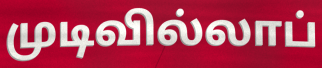
முடிவில்லாப்